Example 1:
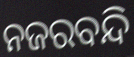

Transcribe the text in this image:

ନଜରବନ୍ଦି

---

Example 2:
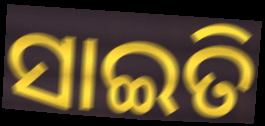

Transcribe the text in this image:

ସାଇତି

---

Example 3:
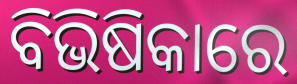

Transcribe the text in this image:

ବିଭିଷିକାରେ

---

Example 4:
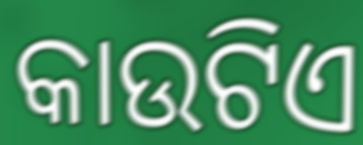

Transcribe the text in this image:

କାଉଟିଏ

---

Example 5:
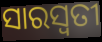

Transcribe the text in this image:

ସାରସ୍ୱତୀ